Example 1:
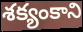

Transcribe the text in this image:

శక్యంకాని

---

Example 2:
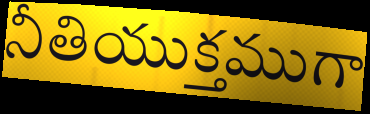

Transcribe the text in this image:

నీతియుక్తముగా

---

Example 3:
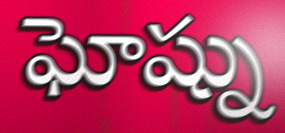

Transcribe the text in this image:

ఘోష్ను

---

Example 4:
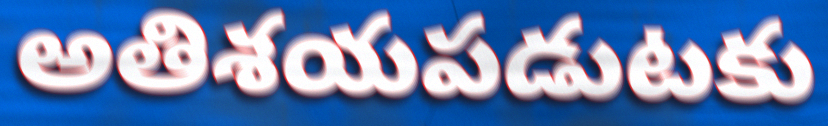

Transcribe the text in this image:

అతిశయపడుటకు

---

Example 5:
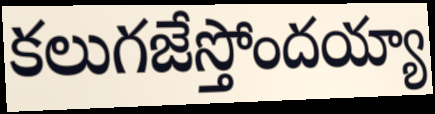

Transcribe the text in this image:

కలుగజేస్తోందయ్యా